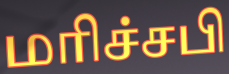
மரிச்சபி